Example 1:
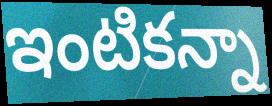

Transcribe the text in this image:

ఇంటికన్నా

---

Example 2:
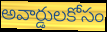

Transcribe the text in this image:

అవార్డులకోసం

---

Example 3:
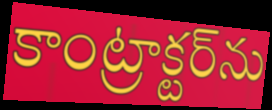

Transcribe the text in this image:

కాంట్రాక్టర్‌ను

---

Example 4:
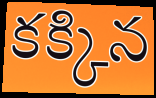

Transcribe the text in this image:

కక్కిన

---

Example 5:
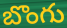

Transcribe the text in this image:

బొంగు